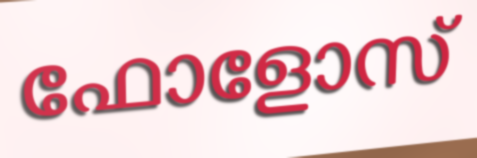
ഫോളോസ്